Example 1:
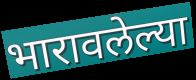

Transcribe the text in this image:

भारावलेल्या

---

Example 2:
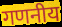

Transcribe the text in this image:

गणनीय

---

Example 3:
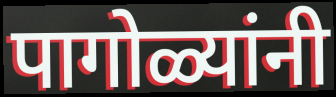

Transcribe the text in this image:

पागोळ्यांनी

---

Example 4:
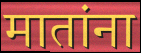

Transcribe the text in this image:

मातांना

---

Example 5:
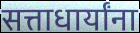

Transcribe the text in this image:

सत्ताधार्यांना